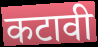
कटावी